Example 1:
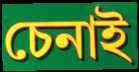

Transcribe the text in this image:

চেনাই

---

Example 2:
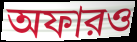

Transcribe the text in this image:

অফারও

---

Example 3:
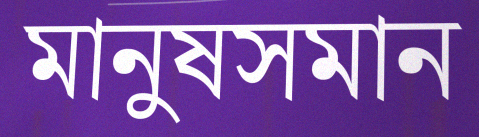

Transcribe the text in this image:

মানুষসমান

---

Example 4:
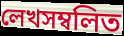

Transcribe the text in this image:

লেখসম্বলিত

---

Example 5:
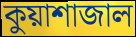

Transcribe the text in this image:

কুয়াশাজাল